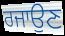
ਰਜਾਉਣ